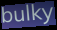
bulky